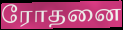
ரோதனை